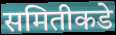
समितीकडे